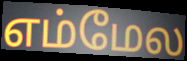
எம்மேல